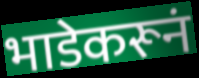
भाडेकरूनं